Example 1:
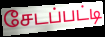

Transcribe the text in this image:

சேடப்பட்டி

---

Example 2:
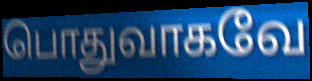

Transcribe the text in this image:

பொதுவாகவே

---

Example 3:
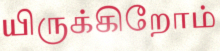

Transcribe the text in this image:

யிருக்கிறோம்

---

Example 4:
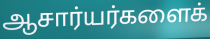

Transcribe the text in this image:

ஆசார்யர்களைக்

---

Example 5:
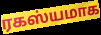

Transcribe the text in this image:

ரகஸ்யமாக